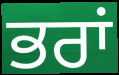
ਭਰਾਂ